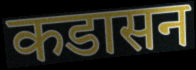
कडासन